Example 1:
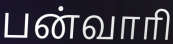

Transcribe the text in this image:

பன்வாரி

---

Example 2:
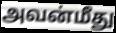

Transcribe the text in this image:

அவன்மீது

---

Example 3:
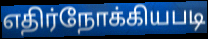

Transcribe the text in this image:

எதிர்நோக்கியபடி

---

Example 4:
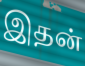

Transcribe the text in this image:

இதன்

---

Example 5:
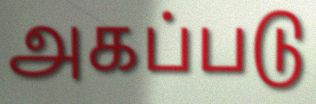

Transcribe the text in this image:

அகப்படு